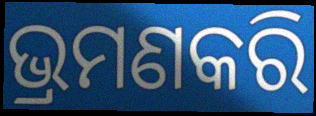
ଭ୍ରମଣକରି